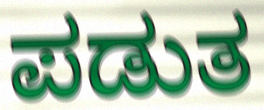
ಪಡುತ